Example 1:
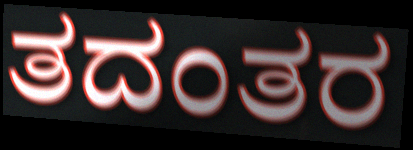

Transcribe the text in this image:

ತದಂತರ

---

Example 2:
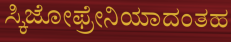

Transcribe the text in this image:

ಸ್ಕಿಜೋಫ್ರೇನಿಯಾದಂತಹ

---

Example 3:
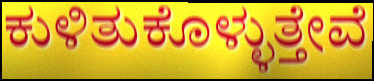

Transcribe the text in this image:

ಕುಳಿತುಕೊಳ್ಳುತ್ತೇವೆ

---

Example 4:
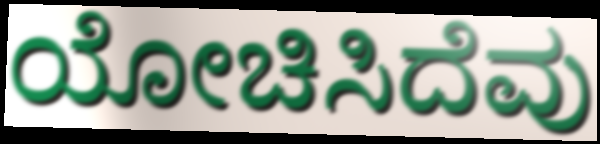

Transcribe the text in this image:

ಯೋಚಿಸಿದೆವು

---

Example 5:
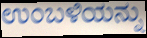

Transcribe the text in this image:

ಉಂಬಳಿಯನ್ನು